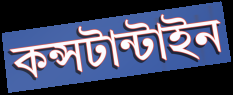
কন্সটান্টাইন